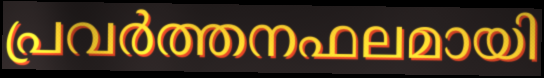
പ്രവർത്തനഫലമായി